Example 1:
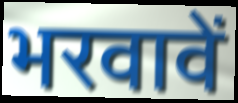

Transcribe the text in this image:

भरवावें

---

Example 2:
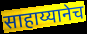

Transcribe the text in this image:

साहाय्यानेच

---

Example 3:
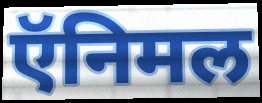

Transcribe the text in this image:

ऍनिमल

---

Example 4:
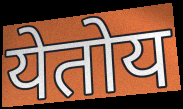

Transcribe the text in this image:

येतोय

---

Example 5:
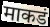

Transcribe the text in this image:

माकडं